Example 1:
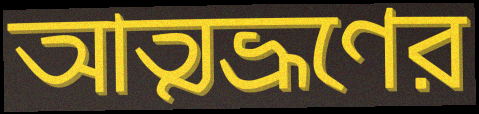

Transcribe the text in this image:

আত্মভ্রূণের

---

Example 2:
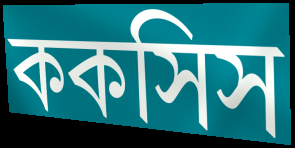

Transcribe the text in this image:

ককসিস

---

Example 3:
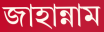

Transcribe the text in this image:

জাহান্নাম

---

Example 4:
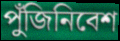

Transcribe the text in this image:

পুঁজিনিবেশ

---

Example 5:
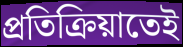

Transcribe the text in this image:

প্রতিক্রিয়াতেই